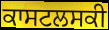
ਕਾਸਟਲਸਕੀ